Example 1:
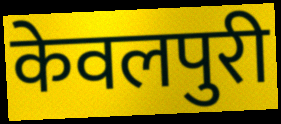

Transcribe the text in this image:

केवलपुरी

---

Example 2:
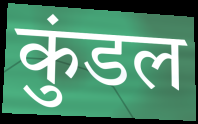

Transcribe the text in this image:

कुंडल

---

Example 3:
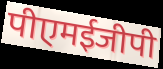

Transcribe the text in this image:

पीएमईजीपी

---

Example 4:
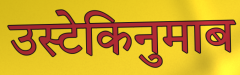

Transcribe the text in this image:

उस्टेकिनुमाब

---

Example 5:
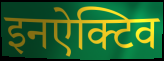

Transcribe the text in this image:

इनऐक्टिव